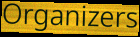
Organizers